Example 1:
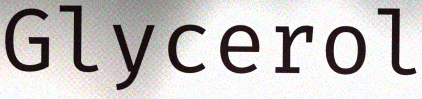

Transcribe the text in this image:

Glycerol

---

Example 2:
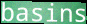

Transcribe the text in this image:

basins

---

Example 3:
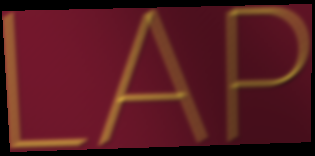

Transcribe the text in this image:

LAP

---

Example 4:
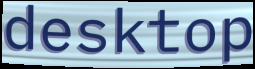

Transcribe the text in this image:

desktop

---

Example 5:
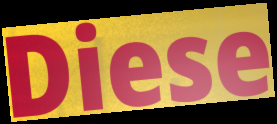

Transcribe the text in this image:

Diese